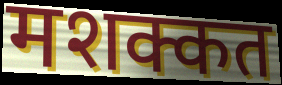
मशक्कत